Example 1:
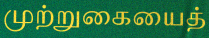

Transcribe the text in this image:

முற்றுகையைத்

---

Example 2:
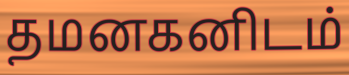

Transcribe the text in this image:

தமனகனிடம்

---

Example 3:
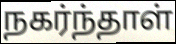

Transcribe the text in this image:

நகர்ந்தாள்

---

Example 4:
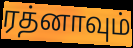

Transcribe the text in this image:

ரத்னாவும்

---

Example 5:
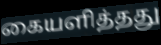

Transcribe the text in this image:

கையளித்தது